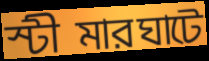
স্টীমারঘাটে